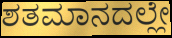
ಶತಮಾನದಲ್ಲೇ